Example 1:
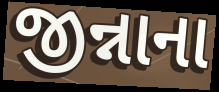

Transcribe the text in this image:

જીન્નાના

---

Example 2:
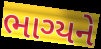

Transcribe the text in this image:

ભાગ્યને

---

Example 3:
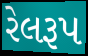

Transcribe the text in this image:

રેલરૂપ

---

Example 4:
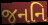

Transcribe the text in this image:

જનનિ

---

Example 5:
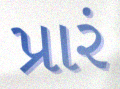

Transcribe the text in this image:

પ્રારં